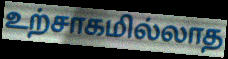
உற்சாகமில்லாத